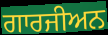
ਗਾਰਜੀਅਨ